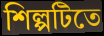
শিল্পটিতে